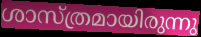
ശാസ്ത്രമായിരുന്നു